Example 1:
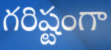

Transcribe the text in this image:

గరిష్టంగా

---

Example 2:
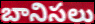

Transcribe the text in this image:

బానిసలు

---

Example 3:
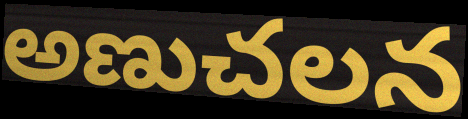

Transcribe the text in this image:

అణుచలన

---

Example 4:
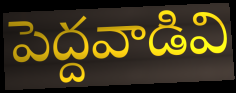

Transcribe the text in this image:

పెద్దవాడివి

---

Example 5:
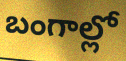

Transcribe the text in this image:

బంగాల్లో